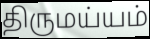
திருமய்யம்